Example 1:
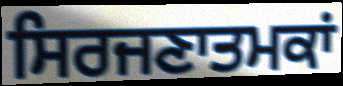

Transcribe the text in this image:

ਸਿਰਜਣਾਤਮਕਾਂ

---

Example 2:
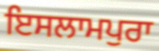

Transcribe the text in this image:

ਇਸਲਾਮਪੁਰਾ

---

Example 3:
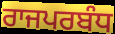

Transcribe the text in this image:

ਰਾਜਪਰਬੰਧ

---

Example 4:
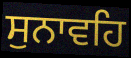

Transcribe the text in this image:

ਸੁਨਾਵਹਿ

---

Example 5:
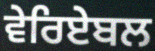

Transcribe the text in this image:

ਵੇਰਿਏਬਲ